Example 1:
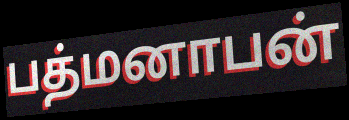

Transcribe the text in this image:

பத்மனாபன்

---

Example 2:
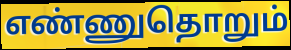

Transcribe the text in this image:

எண்ணுதொறும்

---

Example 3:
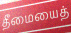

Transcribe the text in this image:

தீமையைத்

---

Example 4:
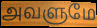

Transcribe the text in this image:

அவளுமே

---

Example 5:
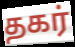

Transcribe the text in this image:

தகர்